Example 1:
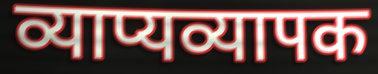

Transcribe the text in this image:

व्याप्यव्यापक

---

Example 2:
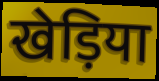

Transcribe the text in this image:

खेड़िया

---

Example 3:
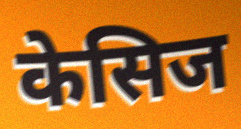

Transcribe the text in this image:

केसिज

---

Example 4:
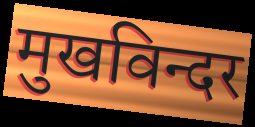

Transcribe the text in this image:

मुखविन्दर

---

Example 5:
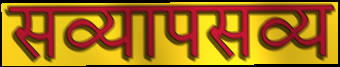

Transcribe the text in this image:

सव्यापसव्य